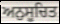
ਅਨੁਸੂਚਿਤ